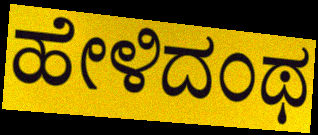
ಹೇಳಿದಂಥ